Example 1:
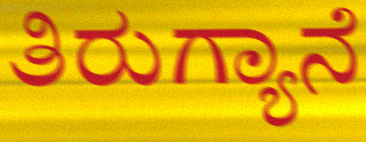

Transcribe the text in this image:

ತಿರುಗ್ಯಾನೆ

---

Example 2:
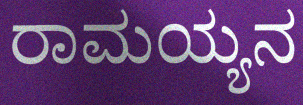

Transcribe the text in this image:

ರಾಮಯ್ಯನ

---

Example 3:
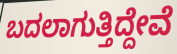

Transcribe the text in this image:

ಬದಲಾಗುತ್ತಿದ್ದೇವೆ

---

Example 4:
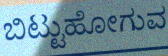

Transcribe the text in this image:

ಬಿಟ್ಟುಹೋಗುವ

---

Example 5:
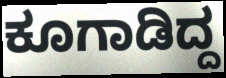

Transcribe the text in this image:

ಕೂಗಾಡಿದ್ದ